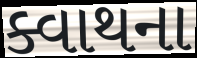
ક્વાથના